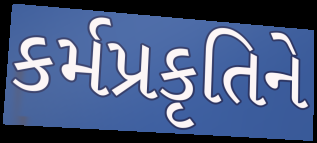
કર્મપ્રકૃતિને